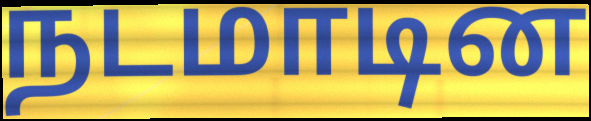
நடமாடின